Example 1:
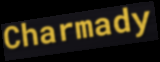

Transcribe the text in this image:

Charmady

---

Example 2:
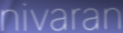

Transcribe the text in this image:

nivaran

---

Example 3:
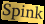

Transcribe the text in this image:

Spink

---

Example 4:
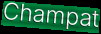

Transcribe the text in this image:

Champat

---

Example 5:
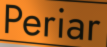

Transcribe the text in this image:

Periar